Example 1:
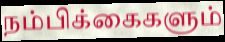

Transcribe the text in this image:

நம்பிக்கைகளும்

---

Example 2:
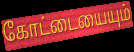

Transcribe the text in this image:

கோட்டையையும்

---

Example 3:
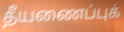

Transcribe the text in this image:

தீயணைப்புக்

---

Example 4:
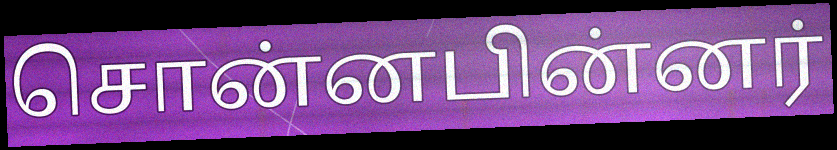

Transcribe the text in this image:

சொன்னபின்னர்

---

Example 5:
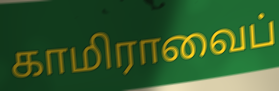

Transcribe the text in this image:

காமிராவைப்